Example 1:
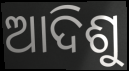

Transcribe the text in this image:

ଆଦିଶୁ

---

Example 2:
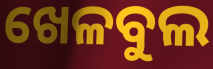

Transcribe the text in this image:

ଖେଳବୁଲ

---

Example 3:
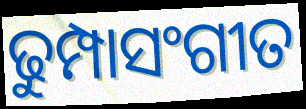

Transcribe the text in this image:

ଢୁମ୍ପାସଂଗୀତ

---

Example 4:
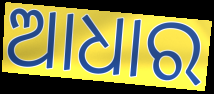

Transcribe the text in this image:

ଆଧାର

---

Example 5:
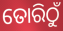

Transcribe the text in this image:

ତୋରିଠୁଁ